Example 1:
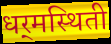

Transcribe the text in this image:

धर्मस्थिती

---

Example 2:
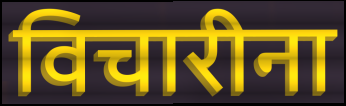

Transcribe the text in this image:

विचारीना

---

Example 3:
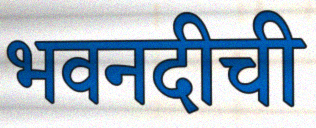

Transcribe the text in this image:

भवनदीची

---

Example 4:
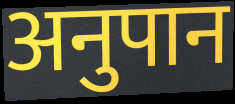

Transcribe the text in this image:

अनुपान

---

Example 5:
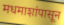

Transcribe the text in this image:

मधमाशांपासून